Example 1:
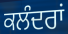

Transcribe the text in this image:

ਕਲੰਦਰਾਂ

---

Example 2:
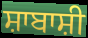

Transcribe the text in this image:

ਸ਼ਾਬਾਸ਼ੀ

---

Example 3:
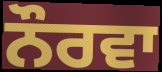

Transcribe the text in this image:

ਨੌਰਵਾ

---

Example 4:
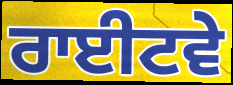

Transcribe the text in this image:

ਰਾਈਟਵੇ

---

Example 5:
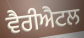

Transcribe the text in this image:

ਵੈਰੀਐਟਲ